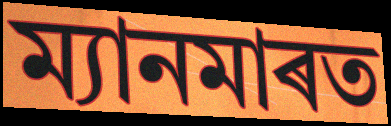
ম্যানমাৰত